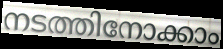
നടത്തിനോക്കാം